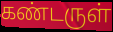
கண்டருள்